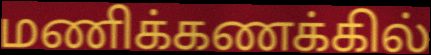
மணிக்கணக்கில்